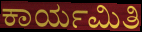
ಕಾರ್ಯಮಿತಿ